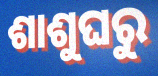
ଶାଶୁଘରୁ